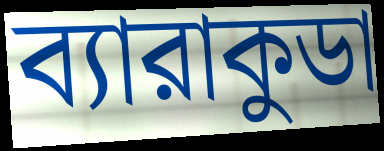
ব্যারাকুডা